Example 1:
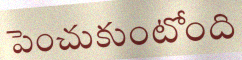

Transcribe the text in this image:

పెంచుకుంటోంది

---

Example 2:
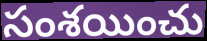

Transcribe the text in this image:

సంశయించు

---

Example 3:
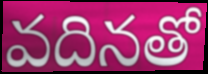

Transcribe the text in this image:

వదినతో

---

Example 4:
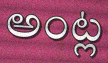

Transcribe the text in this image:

అంట్ల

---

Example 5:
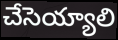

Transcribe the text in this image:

చేసెయ్యాలి